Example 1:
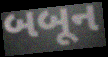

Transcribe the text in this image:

બબૂન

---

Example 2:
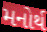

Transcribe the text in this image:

મનોર્થ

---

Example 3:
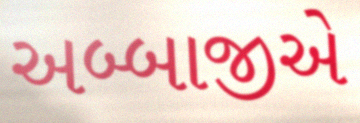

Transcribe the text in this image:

અબ્બાજીએ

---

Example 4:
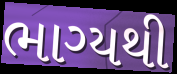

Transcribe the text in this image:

ભાગ્યથી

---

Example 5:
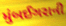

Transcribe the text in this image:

મુંબઈગરાની